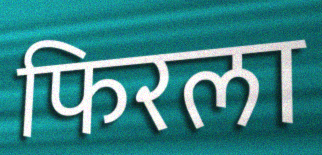
फिरला